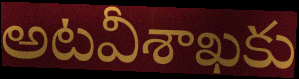
అటవీశాఖకు